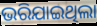
ଭରିଯାଇଥିଲା